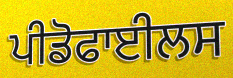
ਪੀਡੋਫਾਈਲਸ